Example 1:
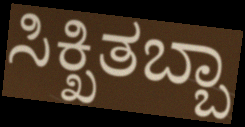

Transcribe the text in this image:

ಸಿಕ್ಖಿತಬ್ಬಾ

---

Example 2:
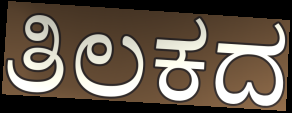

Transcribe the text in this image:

ತಿಲಕದ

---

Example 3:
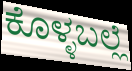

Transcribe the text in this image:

ಕೊಳ್ಳಬಲ್ಲೆ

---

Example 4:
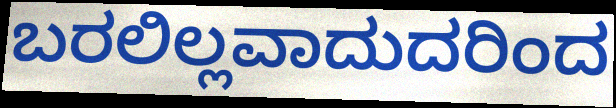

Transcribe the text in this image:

ಬರಲಿಲ್ಲವಾದುದರಿಂದ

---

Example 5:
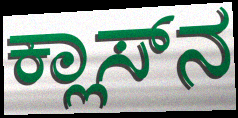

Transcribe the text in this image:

ಕ್ಲಾಸ್‌ನ